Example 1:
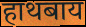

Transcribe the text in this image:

हाथबाय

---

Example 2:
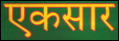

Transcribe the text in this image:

एकसार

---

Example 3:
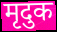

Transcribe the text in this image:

मृदुक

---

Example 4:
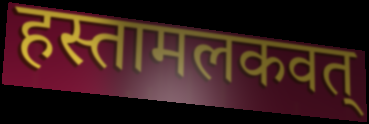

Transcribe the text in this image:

हस्तामलकवत्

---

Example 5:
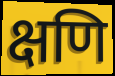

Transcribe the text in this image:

क्षणि